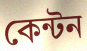
কেন্টন